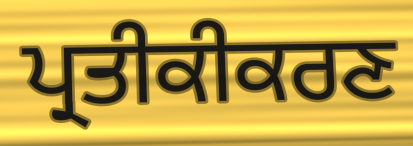
ਪ੍ਰਤੀਕੀਕਰਣ